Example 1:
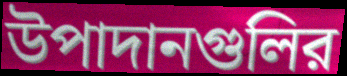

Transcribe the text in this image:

উপাদানগুলির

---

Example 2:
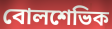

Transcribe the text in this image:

বোলশেভিক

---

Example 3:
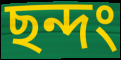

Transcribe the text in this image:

ছন্দং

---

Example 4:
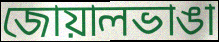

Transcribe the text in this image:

জোয়ালভাঙা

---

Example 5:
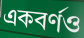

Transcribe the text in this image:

একবর্ণও